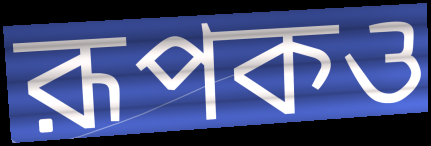
রূপকও